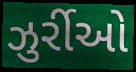
ઝુર્રીઓ